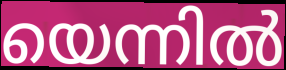
യെന്നിൽ